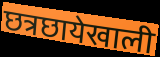
छत्रछायेखाली